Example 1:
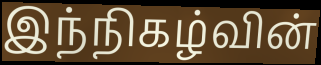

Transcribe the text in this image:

இந்நிகழ்வின்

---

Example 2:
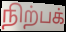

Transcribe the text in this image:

நிற்பக்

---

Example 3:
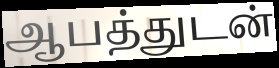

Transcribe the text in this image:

ஆபத்துடன்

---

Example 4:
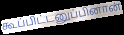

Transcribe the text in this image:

கூப்பிட்டனுப்பினான்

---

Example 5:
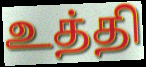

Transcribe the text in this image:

உத்தி